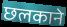
छलकाने